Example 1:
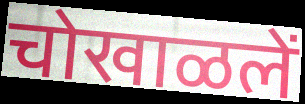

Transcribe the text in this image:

चोखाळलें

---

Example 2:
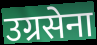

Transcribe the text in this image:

उग्रसेना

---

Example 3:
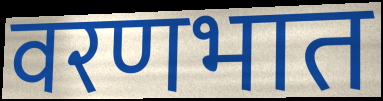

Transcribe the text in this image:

वरणभात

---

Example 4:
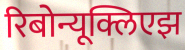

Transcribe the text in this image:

रिबोन्यूक्लिएझ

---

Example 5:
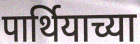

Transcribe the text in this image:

पार्थियाच्या